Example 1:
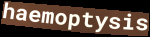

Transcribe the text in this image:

haemoptysis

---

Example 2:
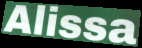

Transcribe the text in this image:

Alissa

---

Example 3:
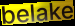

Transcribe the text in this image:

belake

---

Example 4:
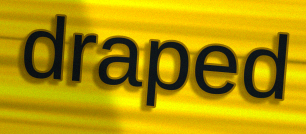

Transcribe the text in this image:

draped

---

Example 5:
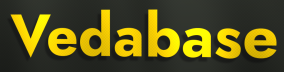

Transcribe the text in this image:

Vedabase